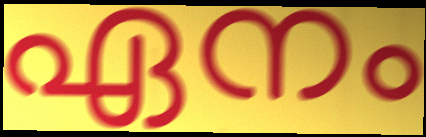
ഏനം